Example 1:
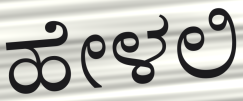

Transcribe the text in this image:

ಹೇಳಲಿ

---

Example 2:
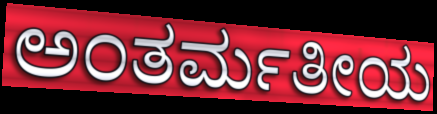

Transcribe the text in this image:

ಅಂತರ್ಮತೀಯ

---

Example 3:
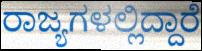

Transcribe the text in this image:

ರಾಜ್ಯಗಳಲ್ಲಿದ್ದಾರೆ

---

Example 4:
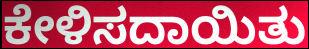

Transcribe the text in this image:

ಕೇಳಿಸದಾಯಿತು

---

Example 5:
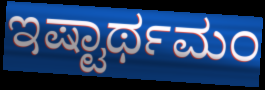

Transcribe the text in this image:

ಇಷ್ಟಾರ್ಥಮಂ